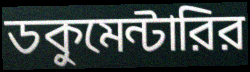
ডকুমেন্টারির